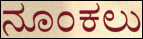
ನೂಂಕಲು